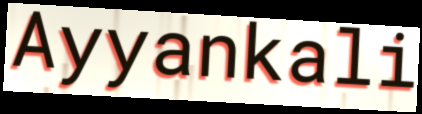
Ayyankali